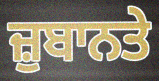
ਜ਼ੁਬਾਨਤੇ